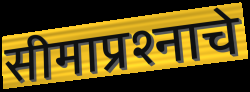
सीमाप्रश्नाचे